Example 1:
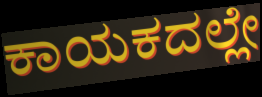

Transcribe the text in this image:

ಕಾಯಕದಲ್ಲೇ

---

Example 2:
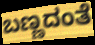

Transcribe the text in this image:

ಬಣ್ಣದಂತೆ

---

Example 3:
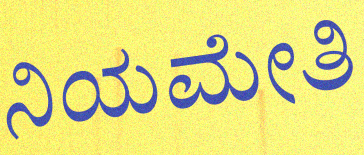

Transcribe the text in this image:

ನಿಯಮೇತಿ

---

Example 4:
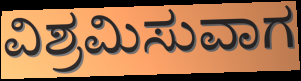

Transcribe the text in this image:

ವಿಶ್ರಮಿಸುವಾಗ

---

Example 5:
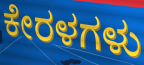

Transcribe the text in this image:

ಕೇರಳಗಳು